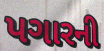
પગારની